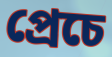
প্ৰেচে